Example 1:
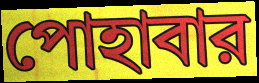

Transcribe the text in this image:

পোহাবার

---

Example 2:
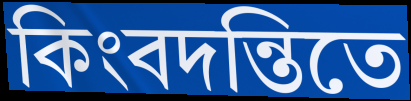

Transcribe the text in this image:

কিংবদন্তিতে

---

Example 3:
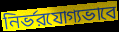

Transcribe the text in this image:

নির্ভরযোগ্যভাবে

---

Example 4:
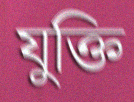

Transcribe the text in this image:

যুক্তি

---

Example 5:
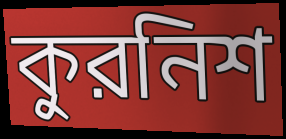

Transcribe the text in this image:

কুরনিশ